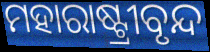
ମହାରାଷ୍ଟ୍ରୀବୃନ୍ଦ